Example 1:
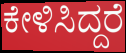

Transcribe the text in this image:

ಕೇಳಿಸಿದ್ದರೆ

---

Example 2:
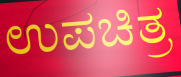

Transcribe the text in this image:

ಉಪಚಿತ್ರ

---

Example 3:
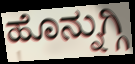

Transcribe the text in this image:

ಹೊನ್ನುಗ್ಗಿ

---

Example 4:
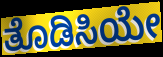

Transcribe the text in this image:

ತೊಡಿಸಿಯೇ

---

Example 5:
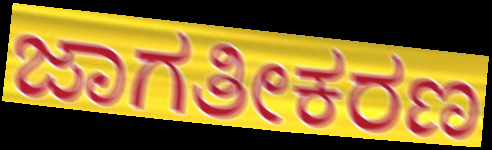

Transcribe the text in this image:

ಜಾಗತೀಕರಣ